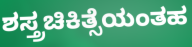
ಶಸ್ತ್ರಚಿಕಿತ್ಸೆಯಂತಹ